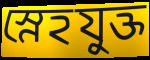
স্নেহযুক্ত